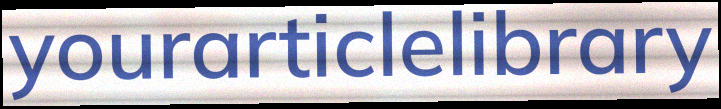
yourarticlelibrary